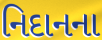
નિદાનના